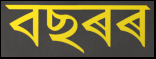
বছৰৰ